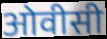
ओवीसी